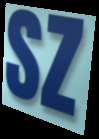
SZ